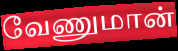
வேணுமான்